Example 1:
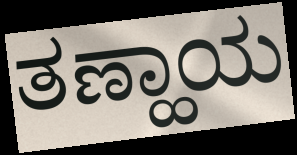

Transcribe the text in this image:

ತಣ್ಹಾಯ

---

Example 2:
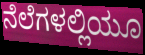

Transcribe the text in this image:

ನೆಲೆಗಳಲ್ಲಿಯೂ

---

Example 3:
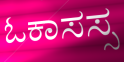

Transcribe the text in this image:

ಓಕಾಸಸ್ಸ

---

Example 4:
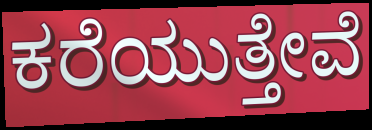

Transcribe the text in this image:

ಕರೆಯುತ್ತೇವೆ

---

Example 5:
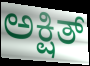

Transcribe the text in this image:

ಅಕ್ಷಿತ್